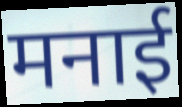
मनाई